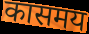
कासमय